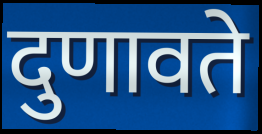
दुणावते